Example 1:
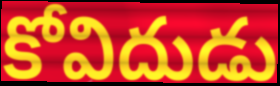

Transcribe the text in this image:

కోవిదుడు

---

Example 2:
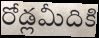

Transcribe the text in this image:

రోడ్లమీదికి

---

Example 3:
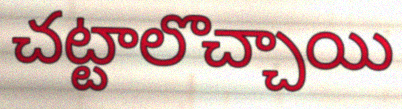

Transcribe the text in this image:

చట్టాలొచ్చాయి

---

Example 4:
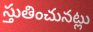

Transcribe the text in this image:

స్తుతించునట్లు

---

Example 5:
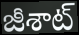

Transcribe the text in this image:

జీశాట్